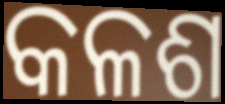
କଳଶ